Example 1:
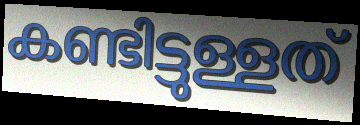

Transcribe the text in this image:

കണ്ടിട്ടുള്ളത്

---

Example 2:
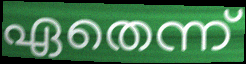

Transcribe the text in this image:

ഏതെന്ന്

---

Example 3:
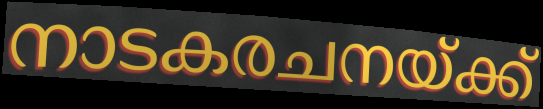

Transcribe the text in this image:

നാടകരചനയ്ക്ക്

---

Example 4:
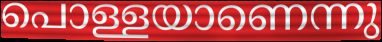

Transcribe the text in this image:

പൊള്ളയാണെന്നു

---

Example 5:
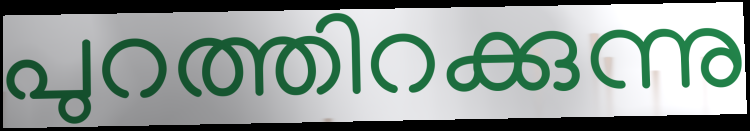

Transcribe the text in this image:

പുറത്തിറക്കുന്നു